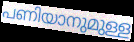
പണിയാനുമുള്ള